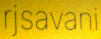
rjsavani